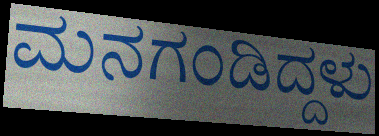
ಮನಗಂಡಿದ್ದಳು